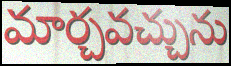
మార్చవచ్చును